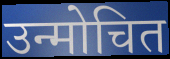
उन्मोचित